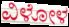
ವಿಳೋಳ